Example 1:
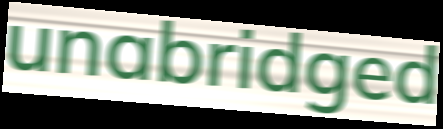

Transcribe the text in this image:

unabridged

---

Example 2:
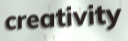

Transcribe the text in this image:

creativity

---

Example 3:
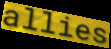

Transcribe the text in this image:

allies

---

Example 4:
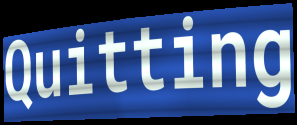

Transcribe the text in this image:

Quitting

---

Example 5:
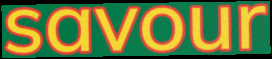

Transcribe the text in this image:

savour